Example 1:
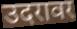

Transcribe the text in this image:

उदरावर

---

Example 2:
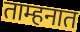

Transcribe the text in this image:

ताम्हनात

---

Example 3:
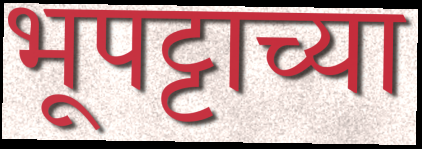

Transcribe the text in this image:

भूपट्टाच्या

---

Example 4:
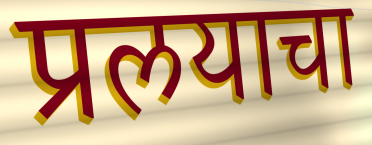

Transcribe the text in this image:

प्रलयाचा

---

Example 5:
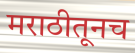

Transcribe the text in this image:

मराठीतूनच